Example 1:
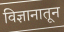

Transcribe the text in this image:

विज्ञानातून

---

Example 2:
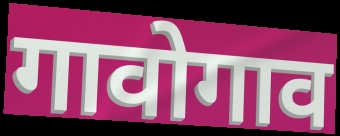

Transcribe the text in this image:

गावोगाव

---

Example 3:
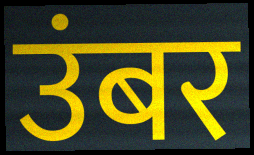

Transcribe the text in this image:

उंबर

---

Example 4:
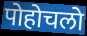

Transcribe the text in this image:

पोहोचलो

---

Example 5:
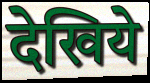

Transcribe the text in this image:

देखिये